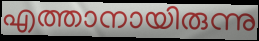
എത്താനായിരുന്നു